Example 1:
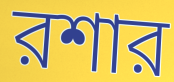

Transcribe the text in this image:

রশার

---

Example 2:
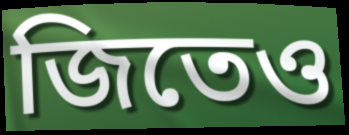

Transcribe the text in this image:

জিতেও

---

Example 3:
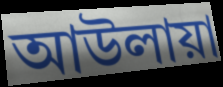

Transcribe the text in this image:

আউলায়া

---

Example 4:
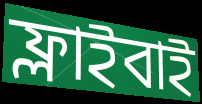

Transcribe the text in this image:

ফ্লাইবাই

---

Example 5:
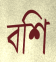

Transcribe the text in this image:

বশি